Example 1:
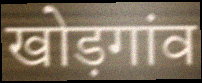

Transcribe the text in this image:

खोड़गांव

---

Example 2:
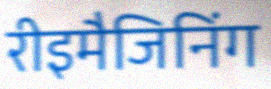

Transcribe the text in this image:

रीइमैजिनिंग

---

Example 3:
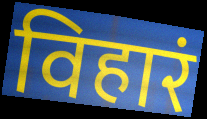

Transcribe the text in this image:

विहारं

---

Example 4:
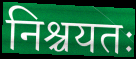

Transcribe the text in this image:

निश्चयतः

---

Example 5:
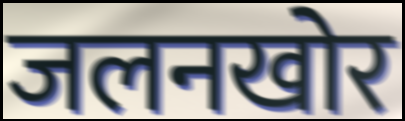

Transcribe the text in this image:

जलनखोर